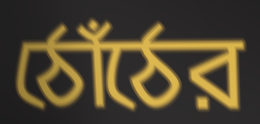
ঠোঁঠের